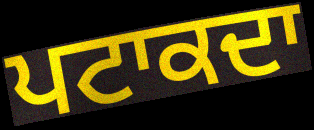
ਪਟਾਕਦਾ